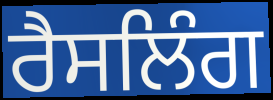
ਰੈਸਲਿੰਗ